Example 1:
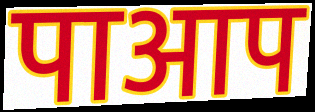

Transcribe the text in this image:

पाआप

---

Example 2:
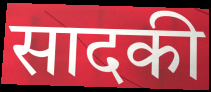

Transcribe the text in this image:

सादकी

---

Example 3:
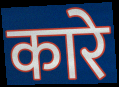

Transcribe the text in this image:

कारे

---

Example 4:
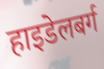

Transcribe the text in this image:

हाइडेलबर्ग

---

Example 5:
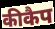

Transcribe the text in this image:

कीकैप